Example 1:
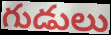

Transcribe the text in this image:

గుడులు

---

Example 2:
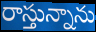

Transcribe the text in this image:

రాస్తున్నాను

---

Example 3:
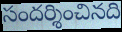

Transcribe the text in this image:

సందర్శించినది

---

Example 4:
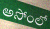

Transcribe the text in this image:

అసోంలో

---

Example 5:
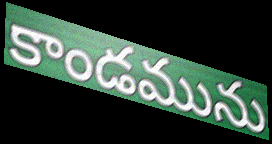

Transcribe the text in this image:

కాండమును